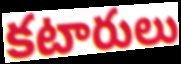
కటారులు